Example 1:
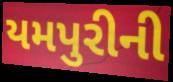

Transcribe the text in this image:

યમપુરીની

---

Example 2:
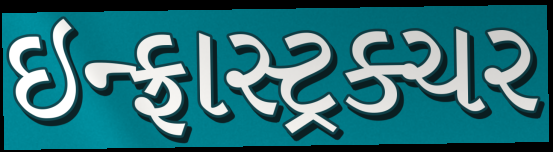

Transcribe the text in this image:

ઇન્ફ્રાસ્ટ્રક્ચર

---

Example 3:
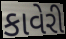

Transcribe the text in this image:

કાવેરી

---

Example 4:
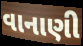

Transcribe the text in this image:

વાનાણી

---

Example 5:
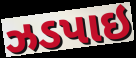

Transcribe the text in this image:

ઝડપાઇ